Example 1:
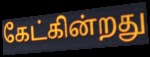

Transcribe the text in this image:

கேட்கின்றது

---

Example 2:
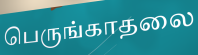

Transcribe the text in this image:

பெருங்காதலை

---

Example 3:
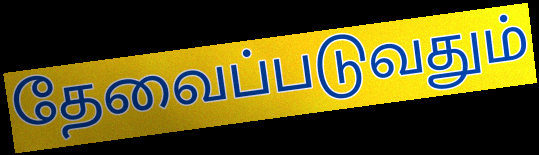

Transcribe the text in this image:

தேவைப்படுவதும்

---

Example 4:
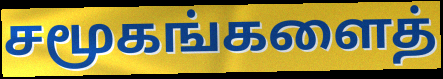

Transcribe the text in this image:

சமூகங்களைத்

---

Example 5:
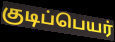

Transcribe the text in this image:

குடிப்பெயர்